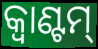
କ୍ୱାଣ୍ଟମ୍